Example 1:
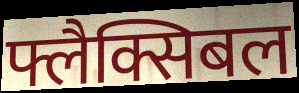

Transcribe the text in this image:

फ्लैक्सिबल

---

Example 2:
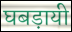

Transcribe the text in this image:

घबड़ायी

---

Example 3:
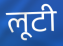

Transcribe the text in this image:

लूटी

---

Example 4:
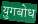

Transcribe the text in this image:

युगबोध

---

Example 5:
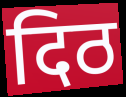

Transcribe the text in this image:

दिठ